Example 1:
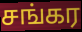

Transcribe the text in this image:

சங்கர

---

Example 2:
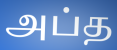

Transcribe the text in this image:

அப்த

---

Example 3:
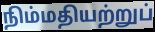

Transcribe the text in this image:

நிம்மதியற்றுப்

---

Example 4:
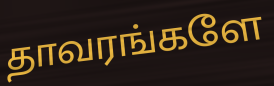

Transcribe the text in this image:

தாவரங்களே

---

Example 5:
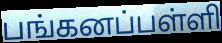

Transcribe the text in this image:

பங்கனப்பள்ளி